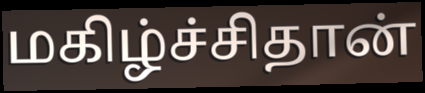
மகிழ்ச்சிதான்